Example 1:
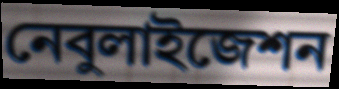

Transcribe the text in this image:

নেবুলাইজেশন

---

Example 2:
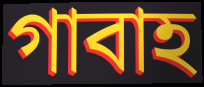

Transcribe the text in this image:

গাবাহ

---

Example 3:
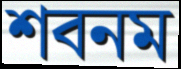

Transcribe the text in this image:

শবনম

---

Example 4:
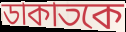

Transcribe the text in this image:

ডাকাতকে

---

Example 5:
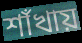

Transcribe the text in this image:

শাঁখায়